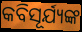
କବିସୂର୍ଯ୍ୟଙ୍କ